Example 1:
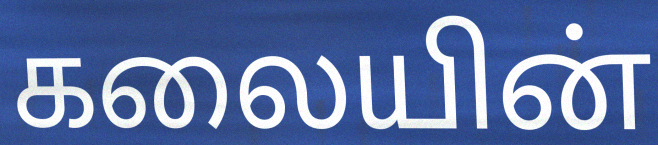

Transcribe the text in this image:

கலையின்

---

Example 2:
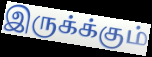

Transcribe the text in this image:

இருக்க்கும்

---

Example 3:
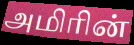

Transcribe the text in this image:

அமிரின்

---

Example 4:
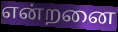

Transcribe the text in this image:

என்றனை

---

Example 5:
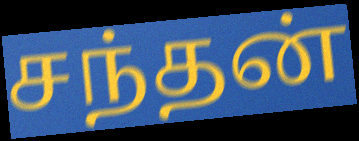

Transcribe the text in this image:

சந்தன்